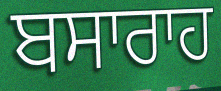
ਬਸਾਰਾਹ